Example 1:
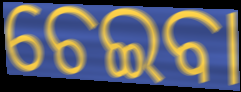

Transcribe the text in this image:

ଚେଇବା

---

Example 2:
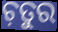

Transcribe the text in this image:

ଚ଼ତୁର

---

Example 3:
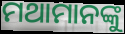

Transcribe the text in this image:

ମଥାମାନଙ୍କୁ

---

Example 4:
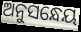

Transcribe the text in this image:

ଅନୁସନ୍ଧେୟ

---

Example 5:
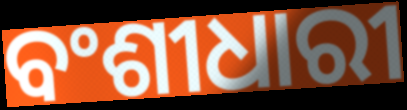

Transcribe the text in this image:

ବଂଶୀଧାରୀ